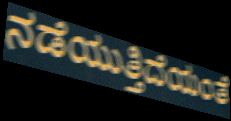
ನಡೆಯುತ್ತಿದೆಯಂತೆ